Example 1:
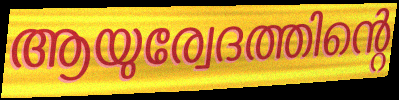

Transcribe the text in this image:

ആയുര്വേദത്തിന്റെ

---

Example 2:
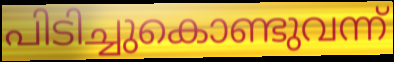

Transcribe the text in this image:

പിടിച്ചുകൊണ്ടുവന്ന്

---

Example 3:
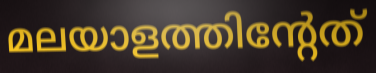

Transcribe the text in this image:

മലയാളത്തിന്റേത്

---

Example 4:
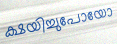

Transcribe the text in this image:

ക്ഷയിച്ചുപോയോ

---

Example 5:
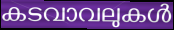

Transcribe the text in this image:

കടവാവലുകൾ